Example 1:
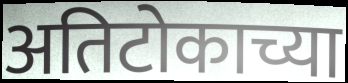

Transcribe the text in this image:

अतिटोकाच्या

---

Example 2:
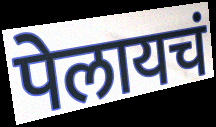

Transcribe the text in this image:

पेलायचं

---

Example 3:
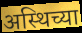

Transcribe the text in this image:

अस्थिच्या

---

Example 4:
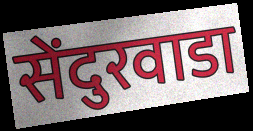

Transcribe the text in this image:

सेंदुरवाडा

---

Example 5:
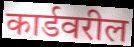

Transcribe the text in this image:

कार्डवरील